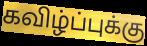
கவிழ்ப்புக்கு